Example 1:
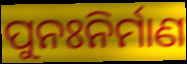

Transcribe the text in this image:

ପୁନଃନିର୍ମାଣ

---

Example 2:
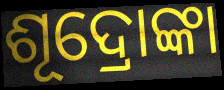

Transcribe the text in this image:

ଶୂଦ୍ରୋଙ୍କା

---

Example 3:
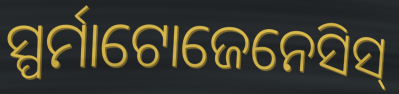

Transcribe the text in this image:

ସ୍ପର୍ମାଟୋଜେନେସିସ୍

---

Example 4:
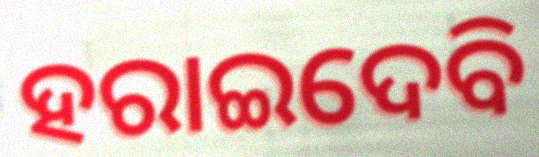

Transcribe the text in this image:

ହରାଇଦେବି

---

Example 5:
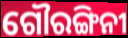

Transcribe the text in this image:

ଗୌରଙ୍ଗିନୀ